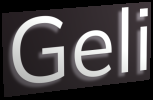
Geli